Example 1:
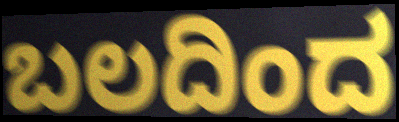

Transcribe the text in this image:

ಬಲದಿಂದ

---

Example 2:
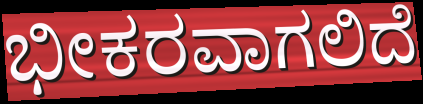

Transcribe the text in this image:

ಭೀಕರವಾಗಲಿದೆ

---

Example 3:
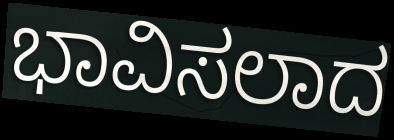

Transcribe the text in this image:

ಭಾವಿಸಲಾದ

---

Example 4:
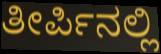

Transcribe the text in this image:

ತೀರ್ಪಿನಲ್ಲಿ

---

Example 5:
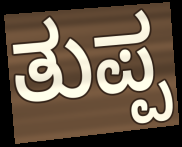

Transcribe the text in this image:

ತುಪ್ಪ